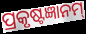
ପ୍ରକୃଷ୍ଟଜ୍ଞାନମ୍